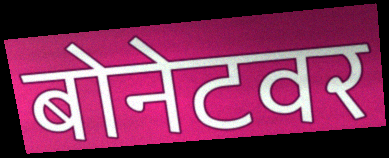
बोनेटवर